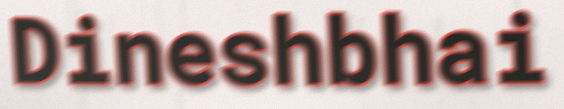
Dineshbhai